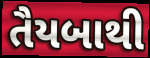
તૈયબાથી